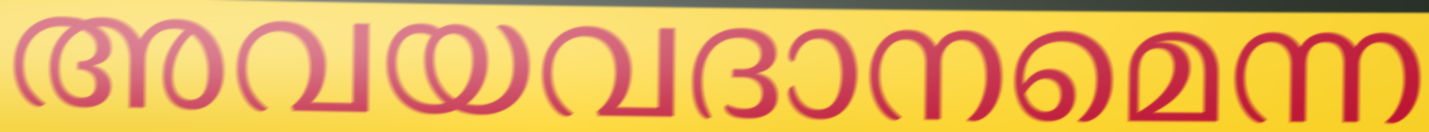
അവയവദാനമെന്ന